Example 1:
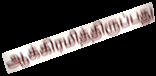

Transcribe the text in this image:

ஆக்கிரமித்திருப்பது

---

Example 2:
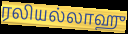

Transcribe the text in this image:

ரலியல்லாஹு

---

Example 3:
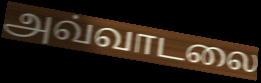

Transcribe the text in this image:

அவ்வாடலை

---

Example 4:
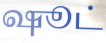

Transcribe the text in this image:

ஷூட்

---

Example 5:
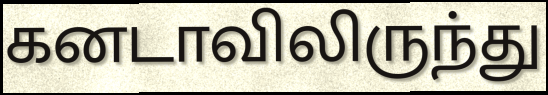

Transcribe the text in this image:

கனடாவிலிருந்து